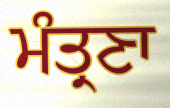
ਮੰਤ੍ਰਣਾ